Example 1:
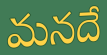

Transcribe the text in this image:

మనదే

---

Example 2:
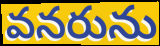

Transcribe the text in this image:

వనరును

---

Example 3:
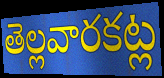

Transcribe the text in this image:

తెల్లవారకట్ల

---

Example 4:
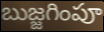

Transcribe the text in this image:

బుజ్జగింపూ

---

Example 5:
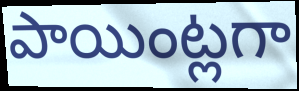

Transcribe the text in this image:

పాయింట్లగా